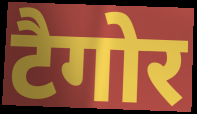
टैगोर